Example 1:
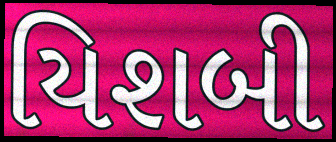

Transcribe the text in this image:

યિશબી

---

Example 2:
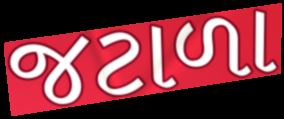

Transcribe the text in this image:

જટાળા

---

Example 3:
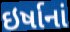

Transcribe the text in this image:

ઇર્ષાનાં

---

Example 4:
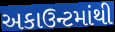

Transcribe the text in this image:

અકાઉન્ટમાંથી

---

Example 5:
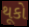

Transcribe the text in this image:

થૂકો